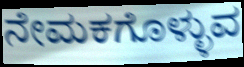
ನೇಮಕಗೊಳ್ಳುವ